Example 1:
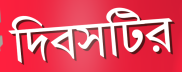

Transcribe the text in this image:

দিবসটির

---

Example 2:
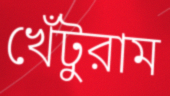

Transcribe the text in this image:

খেঁটুরাম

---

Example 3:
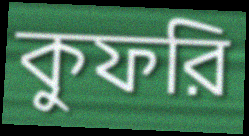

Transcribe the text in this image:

কুফরি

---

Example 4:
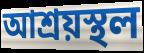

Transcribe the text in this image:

আশ্রয়স্থল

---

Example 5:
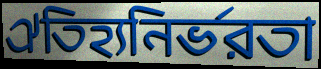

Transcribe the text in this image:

ঐতিহ্যনির্ভরতা